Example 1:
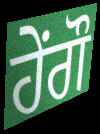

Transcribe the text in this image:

ਹੇਂਗੌ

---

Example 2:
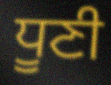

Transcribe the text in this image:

ਧੂਣੀ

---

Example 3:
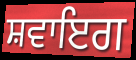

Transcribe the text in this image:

ਸ਼ਵਾਇਗ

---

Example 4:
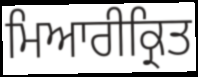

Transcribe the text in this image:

ਮਿਆਰੀਕ੍ਰਿਤ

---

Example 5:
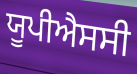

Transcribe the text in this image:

ਯੂਪੀਐਸਸੀ